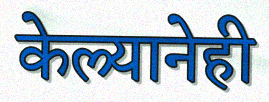
केल्यानेही